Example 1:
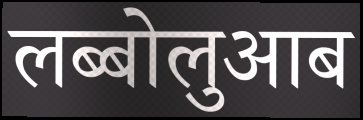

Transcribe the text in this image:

लब्बोलुआब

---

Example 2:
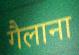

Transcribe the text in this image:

गैलाना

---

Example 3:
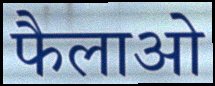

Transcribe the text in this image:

फैलाओ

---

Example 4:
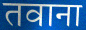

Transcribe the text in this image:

तवाना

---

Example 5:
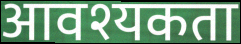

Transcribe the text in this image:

आवश्यकता